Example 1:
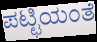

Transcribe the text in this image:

ಪಟ್ಟಿಯಂತೆ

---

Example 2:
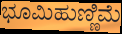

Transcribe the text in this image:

ಭೂಮಿಹುಣ್ಣಿಮೆ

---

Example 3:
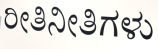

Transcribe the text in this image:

ರೀತಿನೀತಿಗಳು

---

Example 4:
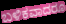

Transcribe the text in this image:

ಬಳಿಕವಾದರೂ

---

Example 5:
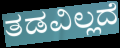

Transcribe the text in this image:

ತಡವಿಲ್ಲದೆ